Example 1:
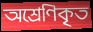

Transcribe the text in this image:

অশ্রেণিকৃত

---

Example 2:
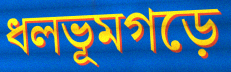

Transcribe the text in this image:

ধলভূমগড়ে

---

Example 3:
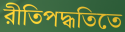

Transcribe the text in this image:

রীতিপদ্ধতিতে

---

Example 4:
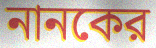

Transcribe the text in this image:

নানকের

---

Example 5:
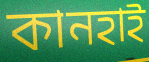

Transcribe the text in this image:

কানহাই